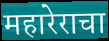
महारेराचा